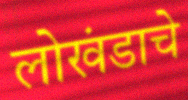
लोखंडाचे